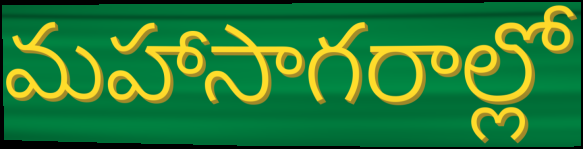
మహాసాగరాల్లో